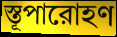
স্তূপারোহণ